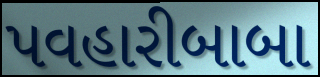
પવહારીબાબા